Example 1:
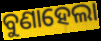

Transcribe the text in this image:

ବୁଣାହେଲା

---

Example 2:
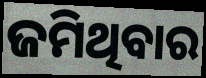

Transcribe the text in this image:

ଜମିଥିବାର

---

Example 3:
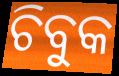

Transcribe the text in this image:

ଚିବୁକ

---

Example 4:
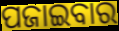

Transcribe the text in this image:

ପଜାଇବାର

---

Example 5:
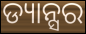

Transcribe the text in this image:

ଡ୍ୟାନ୍ସର